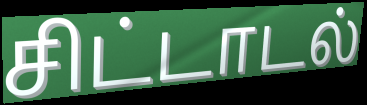
சிட்டாடல்